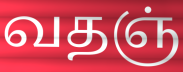
வதஞ்